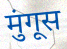
मुंगूस